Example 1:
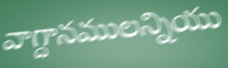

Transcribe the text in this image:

వాగ్దానములన్నియు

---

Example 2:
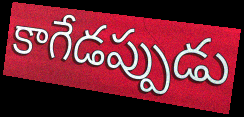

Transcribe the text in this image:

కాగేడప్పుడు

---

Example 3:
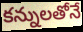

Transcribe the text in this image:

కన్నులతోనే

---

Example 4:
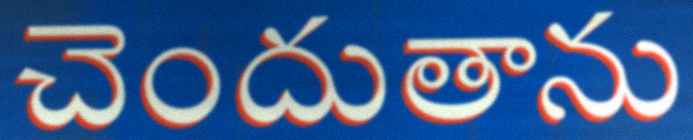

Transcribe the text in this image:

చెందుతాను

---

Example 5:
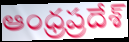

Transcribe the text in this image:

ఆంధ్రప్రదేశ్